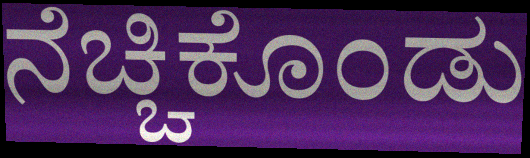
ನೆಚ್ಚಿಕೊಂಡು